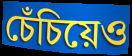
চেঁচিয়েও